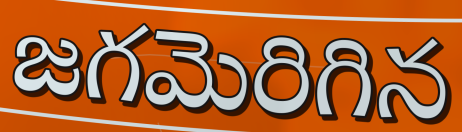
జగమెరిగిన